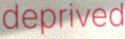
deprived